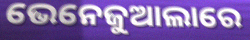
ଭେନେଜୁଆଲାରେ